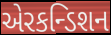
એરકન્ડિશન